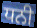
ਧਨੀ